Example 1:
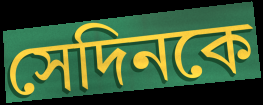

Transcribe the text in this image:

সেদিনকে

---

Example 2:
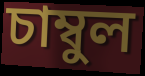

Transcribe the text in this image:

চাম্বুল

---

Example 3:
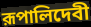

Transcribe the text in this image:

রূপালিদেবী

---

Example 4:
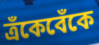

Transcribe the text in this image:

ত্রঁকেবেঁকে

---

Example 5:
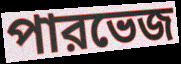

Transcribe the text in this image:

পারভেজ